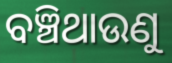
ବଞ୍ଚିଥାଉଣୁ